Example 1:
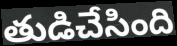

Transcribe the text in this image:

తుడిచేసింది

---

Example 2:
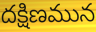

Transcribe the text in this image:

దక్షిణమున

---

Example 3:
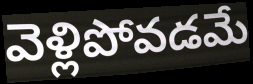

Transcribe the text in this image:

వెళ్లిపోవడమే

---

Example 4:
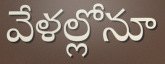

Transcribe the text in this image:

వేళల్లోనూ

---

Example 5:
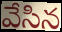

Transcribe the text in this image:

వేసిన